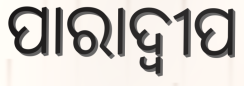
ପାରାଦ୍ୱୀପ